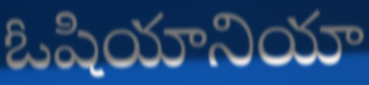
ఓషియానియా